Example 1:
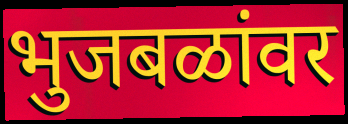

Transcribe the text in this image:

भुजबळांवर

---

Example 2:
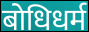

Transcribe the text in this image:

बोधिधर्म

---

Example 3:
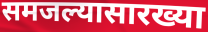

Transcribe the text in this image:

समजल्यासारख्या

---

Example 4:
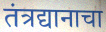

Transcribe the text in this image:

तंत्रद्यानाचा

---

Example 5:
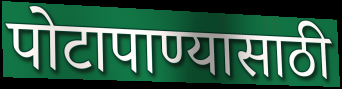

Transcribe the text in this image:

पोटापाण्यासाठी